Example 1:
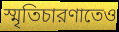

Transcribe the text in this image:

স্মৃতিচারণাতেও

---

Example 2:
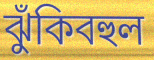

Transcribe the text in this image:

ঝুঁকিবহুল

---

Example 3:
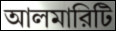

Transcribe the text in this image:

আলমারিটি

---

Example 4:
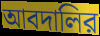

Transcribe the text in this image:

আবদালির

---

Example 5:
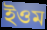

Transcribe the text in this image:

ইওম